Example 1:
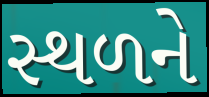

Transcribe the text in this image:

સ્‍થળને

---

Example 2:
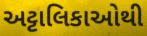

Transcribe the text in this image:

અટ્ટાલિકાઓથી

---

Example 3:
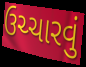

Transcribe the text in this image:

ઉચ્ચારવું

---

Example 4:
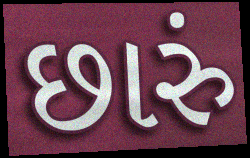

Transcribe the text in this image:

છારું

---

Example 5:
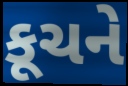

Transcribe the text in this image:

કૂચને